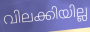
വിലക്കിയില്ല